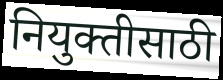
नियुक्तीसाठी